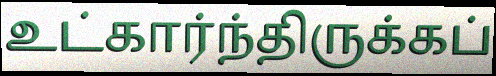
உட்கார்ந்திருக்கப்